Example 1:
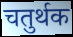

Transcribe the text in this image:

चतुर्थक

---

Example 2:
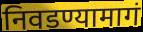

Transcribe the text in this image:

निवडण्यामागं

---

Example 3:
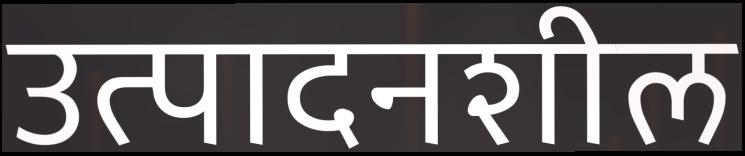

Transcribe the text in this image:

उत्पादनशील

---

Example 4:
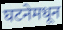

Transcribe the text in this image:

घटनेमधून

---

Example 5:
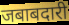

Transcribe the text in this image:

जबाबदारी